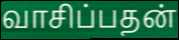
வாசிப்பதன்